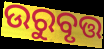
ଉରୁବୃତ୍ତ